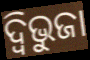
ଦ୍ବିଭୁଜା